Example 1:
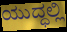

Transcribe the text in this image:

ಯುದ್ಧಲ್ಲಿ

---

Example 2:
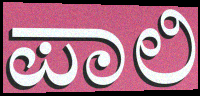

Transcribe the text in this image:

ಪಾಲಿ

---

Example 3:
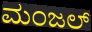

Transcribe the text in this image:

ಮಂಜಲ್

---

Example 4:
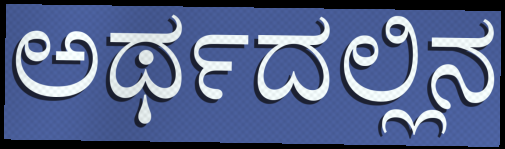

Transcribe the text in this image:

ಅರ್ಥದಲ್ಲಿನ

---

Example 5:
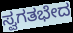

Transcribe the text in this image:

ಸ್ವಗತಭೇದ